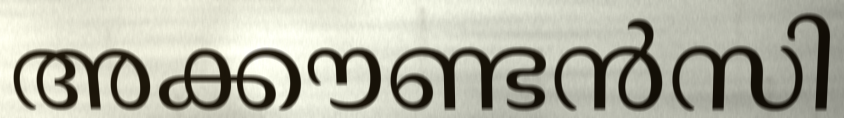
അക്കൗണ്ടൻസി